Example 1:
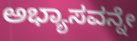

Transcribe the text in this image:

ಅಭ್ಯಾಸವನ್ನೇ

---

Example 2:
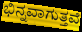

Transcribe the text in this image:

ಭಿನ್ನವಾಗುತ್ತವೆ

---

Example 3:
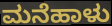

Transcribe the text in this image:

ಮನೆಹಾಳು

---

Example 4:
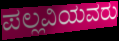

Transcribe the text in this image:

ಪಲ್ಲವಿಯವರು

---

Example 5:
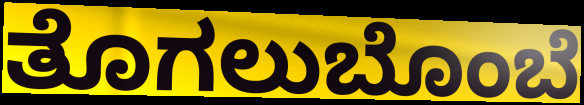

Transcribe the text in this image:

ತೊಗಲುಬೊಂಬೆ